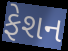
ફેશન